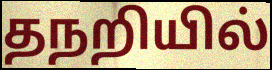
தநறியில்